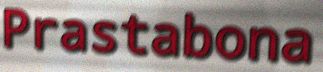
Prastabona